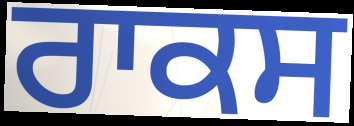
ਰਾਕਸ